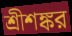
শ্রীশঙ্কর